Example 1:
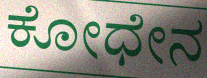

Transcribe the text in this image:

ಕೋಧೇನ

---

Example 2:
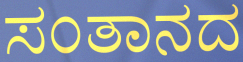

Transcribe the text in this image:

ಸಂತಾನದ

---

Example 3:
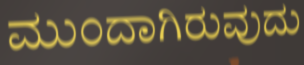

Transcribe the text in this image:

ಮುಂದಾಗಿರುವುದು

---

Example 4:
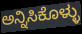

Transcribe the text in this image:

ಅನ್ನಿಸಿಕೊಳ್ಳು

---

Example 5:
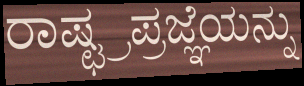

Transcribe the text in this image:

ರಾಷ್ಟ್ರಪ್ರಜ್ಞೆಯನ್ನು